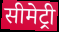
सीमेट्री